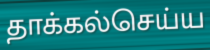
தாக்கல்செய்ய